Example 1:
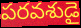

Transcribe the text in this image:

పరవశుడై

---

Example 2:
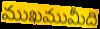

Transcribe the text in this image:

ముఖముమీది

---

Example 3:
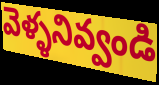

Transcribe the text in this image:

వెళ్ళనివ్వండి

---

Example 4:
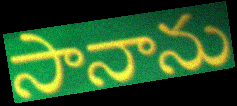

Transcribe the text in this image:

సానాను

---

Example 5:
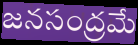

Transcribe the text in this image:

జనసంద్రమే